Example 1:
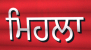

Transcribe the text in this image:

ਮਿਹਲਾ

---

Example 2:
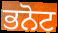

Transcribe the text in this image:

ਭਨੋਟ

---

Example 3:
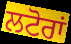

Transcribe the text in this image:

ਲਟੋਰਾਂ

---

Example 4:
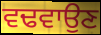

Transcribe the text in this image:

ਵਢਵਾਉਣ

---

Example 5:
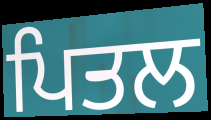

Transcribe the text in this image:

ਪਿਤਲ